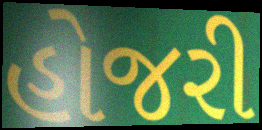
હોજરી